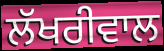
ਲੱਖਰੀਵਾਲ